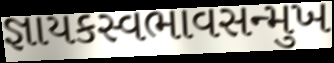
જ્ઞાયકસ્વભાવસન્મુખ